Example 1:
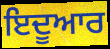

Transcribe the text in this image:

ਇਦੂਆਰ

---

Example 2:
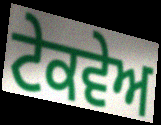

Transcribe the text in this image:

ਟੇਕਵੇਅ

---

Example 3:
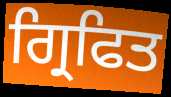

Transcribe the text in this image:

ਗ੍ਰਿਫਿਤ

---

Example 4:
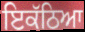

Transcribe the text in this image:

ਇਕੱਠਿਆ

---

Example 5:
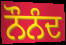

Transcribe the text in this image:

ਨੌਨੰਦ